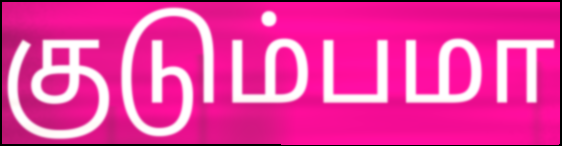
குடும்பமா